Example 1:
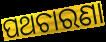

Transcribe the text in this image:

ପଥଚାରଣା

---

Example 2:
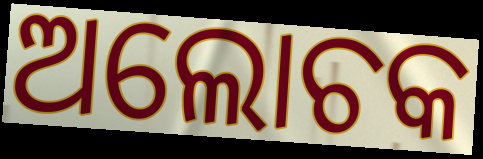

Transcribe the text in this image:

ଅଲୋଚକ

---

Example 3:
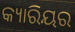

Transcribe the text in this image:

କ୍ୟାରିୟର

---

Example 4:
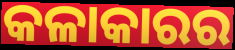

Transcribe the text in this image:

କଳାକାରର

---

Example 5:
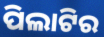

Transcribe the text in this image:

ପିଲାଟିର